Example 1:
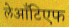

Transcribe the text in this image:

लेआँटिएफ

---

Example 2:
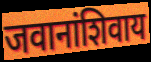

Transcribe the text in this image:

जवानांशिवाय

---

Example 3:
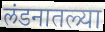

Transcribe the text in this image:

लंडनातल्या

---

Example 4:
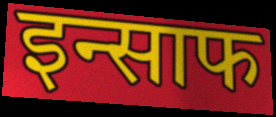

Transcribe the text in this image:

इन्साफ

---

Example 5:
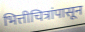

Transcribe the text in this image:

भित्तीचित्रांपासून